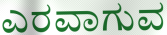
ಎರವಾಗುವ